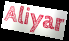
Aliyar